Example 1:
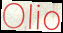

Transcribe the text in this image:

Olio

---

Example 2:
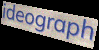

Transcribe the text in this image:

ideograph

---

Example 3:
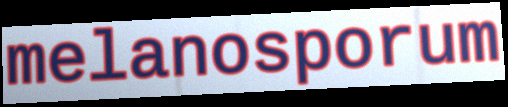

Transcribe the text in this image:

melanosporum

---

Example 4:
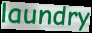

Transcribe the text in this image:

laundry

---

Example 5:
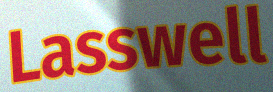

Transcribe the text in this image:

Lasswell